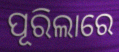
ପୂରିଲାରେ